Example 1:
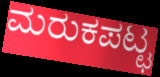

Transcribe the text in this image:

ಮರುಕಪಟ್ಟ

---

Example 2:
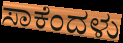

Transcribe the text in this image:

ಸಾಕೆಂದಳು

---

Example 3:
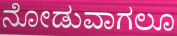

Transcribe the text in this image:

ನೋಡುವಾಗಲೂ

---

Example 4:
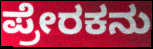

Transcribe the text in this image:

ಪ್ರೇರಕನು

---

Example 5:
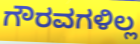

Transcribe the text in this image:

ಗೌರವಗಳಿಲ್ಲ